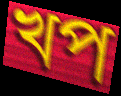
খপ